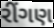
રીંગણ